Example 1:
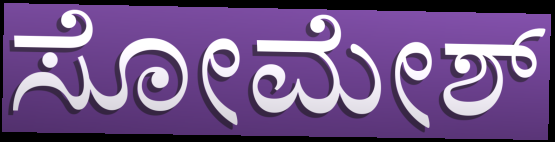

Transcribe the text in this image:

ಸೋಮೇಶ್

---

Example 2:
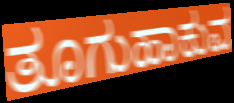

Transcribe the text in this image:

ತೂಗುಹಾಕುವ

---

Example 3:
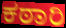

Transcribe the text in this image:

ಕಠಾರಿ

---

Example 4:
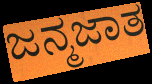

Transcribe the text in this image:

ಜನ್ಮಜಾತ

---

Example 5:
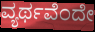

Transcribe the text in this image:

ವ್ಯರ್ಥವೆಂದೇ